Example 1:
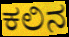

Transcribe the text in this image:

ಕಲಿನ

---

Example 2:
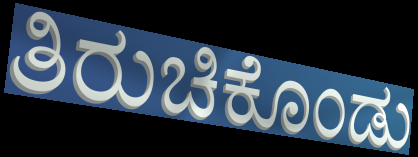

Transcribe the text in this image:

ತಿರುಚಿಕೊಂಡು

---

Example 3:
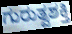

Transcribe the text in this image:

ಗುರುತ್ವಶಕ್ತಿ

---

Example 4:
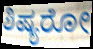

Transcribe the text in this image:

ಶಿಷ್ಯರೋ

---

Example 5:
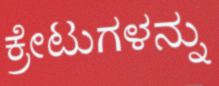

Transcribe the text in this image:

ಕ್ರೇಟುಗಳನ್ನು